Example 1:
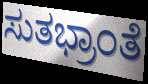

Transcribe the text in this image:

ಸುತಭ್ರಾಂತೆ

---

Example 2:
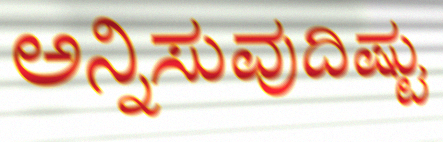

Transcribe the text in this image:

ಅನ್ನಿಸುವುದಿಷ್ಟು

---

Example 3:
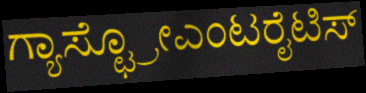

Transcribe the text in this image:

ಗ್ಯಾಸ್ಟ್ರೋಎಂಟರೈಟಿಸ್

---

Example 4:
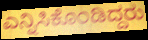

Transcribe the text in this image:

ಎನ್ನಿಸಿಕೊಂಡಿದ್ದರು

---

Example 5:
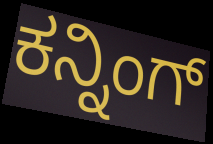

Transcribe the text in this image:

ಕನ್ನಿಂಗ್